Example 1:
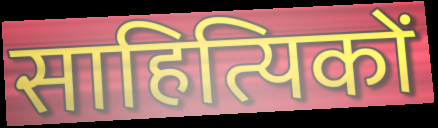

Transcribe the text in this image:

साहित्यिकों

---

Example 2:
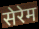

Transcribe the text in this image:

सेरेम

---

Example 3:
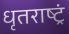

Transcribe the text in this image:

धृतराष्ट्रं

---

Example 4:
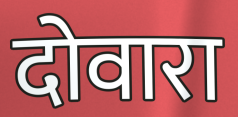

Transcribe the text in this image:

दोवारा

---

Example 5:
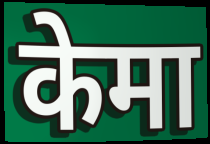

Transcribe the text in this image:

केमा